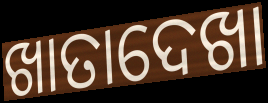
ଖାତାଦେଖା